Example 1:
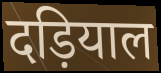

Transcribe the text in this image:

दड़ियाल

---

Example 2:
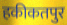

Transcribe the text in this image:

हकीकतपुर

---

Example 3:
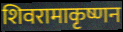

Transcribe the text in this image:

शिवरामाकृष्णन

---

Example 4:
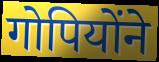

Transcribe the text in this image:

गोपियोंने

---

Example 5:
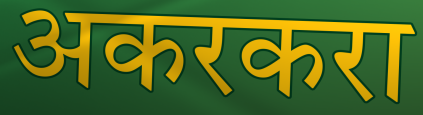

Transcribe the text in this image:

अकरकरा